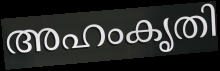
അഹംകൃതി